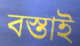
বস্তাই